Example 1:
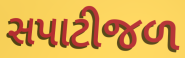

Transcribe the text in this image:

સપાટીજળ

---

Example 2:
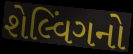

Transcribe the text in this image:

શેલ્વિંગનો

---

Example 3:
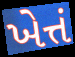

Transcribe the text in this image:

ખેત્તં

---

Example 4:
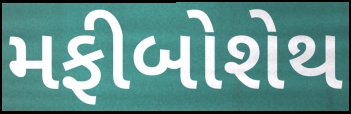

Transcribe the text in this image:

મફીબોશેથ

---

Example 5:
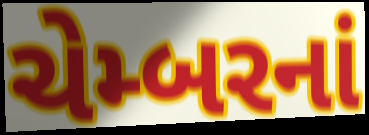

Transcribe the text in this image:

ચેમ્બરનાં